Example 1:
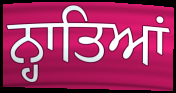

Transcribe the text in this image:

ਨ੍ਹਾਤਿਆਂ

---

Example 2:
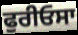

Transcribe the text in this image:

ਫੁਰੀਓਸਾ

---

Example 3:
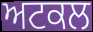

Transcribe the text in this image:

ਅਟਕਲ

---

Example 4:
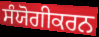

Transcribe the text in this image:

ਸੰਯੋਗੀਕਰਨ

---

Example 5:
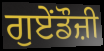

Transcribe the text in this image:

ਗੁਏਂਡੌਜ਼ੀ